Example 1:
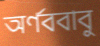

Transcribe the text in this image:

অর্ণববাবু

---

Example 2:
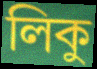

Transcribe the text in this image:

লিকু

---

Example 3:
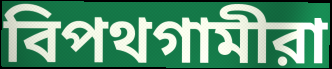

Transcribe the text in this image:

বিপথগামীরা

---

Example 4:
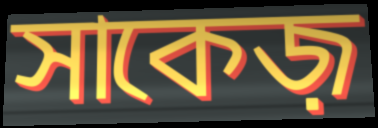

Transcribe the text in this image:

সাকেজ়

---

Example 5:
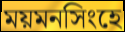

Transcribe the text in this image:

ময়মনসিংহে